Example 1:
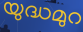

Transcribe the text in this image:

യുദ്ധമുറ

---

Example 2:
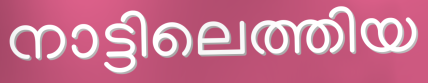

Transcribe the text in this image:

നാട്ടിലെത്തിയ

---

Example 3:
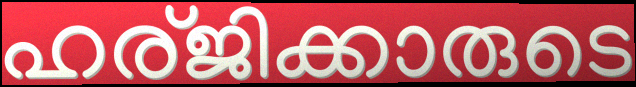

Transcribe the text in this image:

ഹര്ജിക്കാരുടെ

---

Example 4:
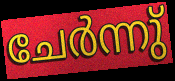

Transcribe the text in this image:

ചേർന്നു്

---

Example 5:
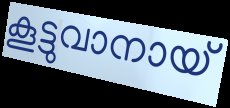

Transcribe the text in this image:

കൂട്ടുവാനായ്